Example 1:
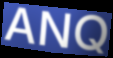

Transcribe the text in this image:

ANQ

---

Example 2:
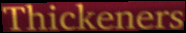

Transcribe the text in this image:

Thickeners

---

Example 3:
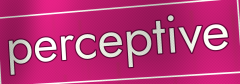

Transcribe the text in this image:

perceptive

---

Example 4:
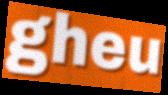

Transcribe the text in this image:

gheu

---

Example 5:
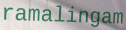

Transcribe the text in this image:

ramalingam